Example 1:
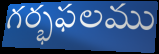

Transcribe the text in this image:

గర్భఫలము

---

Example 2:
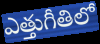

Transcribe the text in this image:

ఎత్తుగీతిలో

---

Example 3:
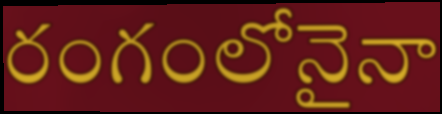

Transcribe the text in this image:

రంగంలోనైనా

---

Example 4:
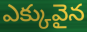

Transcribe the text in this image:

ఎక్కువైన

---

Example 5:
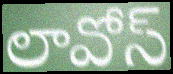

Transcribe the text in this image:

లావోస్